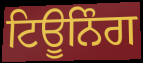
ਟਿਊਨਿੰਗ